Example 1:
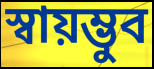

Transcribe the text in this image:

স্বায়ম্ভুব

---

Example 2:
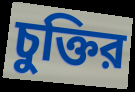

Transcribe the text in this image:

চুক্তির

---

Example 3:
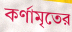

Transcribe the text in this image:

কর্ণামৃতের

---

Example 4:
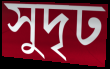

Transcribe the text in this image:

সুদৃঢ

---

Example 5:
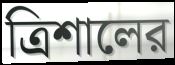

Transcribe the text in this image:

ত্রিশালের